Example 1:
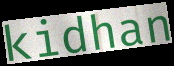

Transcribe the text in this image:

kidhan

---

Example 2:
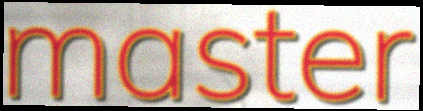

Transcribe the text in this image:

master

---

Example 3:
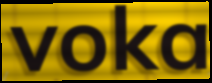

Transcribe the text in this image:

voka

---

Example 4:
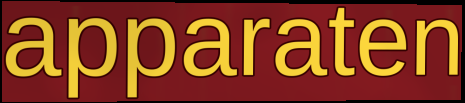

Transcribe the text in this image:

apparaten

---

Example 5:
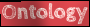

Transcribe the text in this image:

Ontology